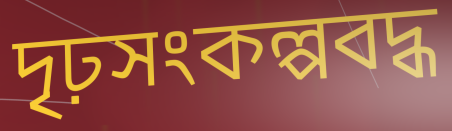
দৃঢ়সংকল্পবদ্ধ